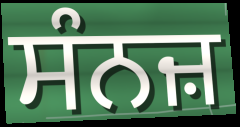
ਸੰਨਜ਼